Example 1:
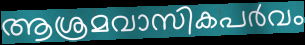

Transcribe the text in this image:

ആശ്രമവാസികപർവം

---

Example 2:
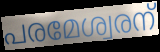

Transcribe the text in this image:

പരമേശ്വരന്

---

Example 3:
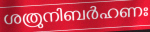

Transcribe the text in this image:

ശത്രുനിബർഹണഃ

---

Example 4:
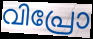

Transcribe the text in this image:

വിപ്രോ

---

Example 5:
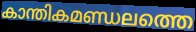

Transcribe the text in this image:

കാന്തികമണ്ഡലത്തെ